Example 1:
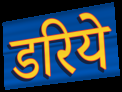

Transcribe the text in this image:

डरिये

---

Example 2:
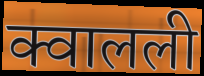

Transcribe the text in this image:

क्वालली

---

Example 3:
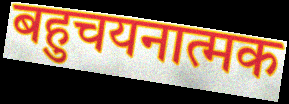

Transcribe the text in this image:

बहुचयनात्मक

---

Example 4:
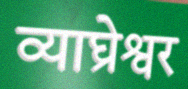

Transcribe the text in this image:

व्याघ्रेश्वर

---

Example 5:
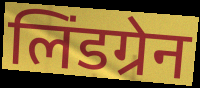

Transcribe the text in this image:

लिंडग्रेन